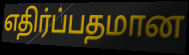
எதிர்ப்பதமான